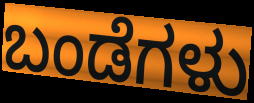
ಬಂಡೆಗಳು